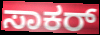
ಸಾಕರ್